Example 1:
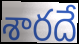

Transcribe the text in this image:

శారదే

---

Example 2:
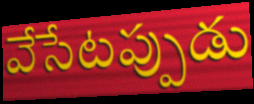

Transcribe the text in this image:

వేసేటప్పుడు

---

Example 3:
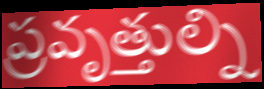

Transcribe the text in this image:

ప్రవృత్తుల్ని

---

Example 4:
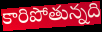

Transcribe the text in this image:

కారిపోతున్నది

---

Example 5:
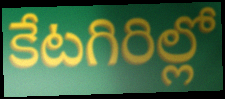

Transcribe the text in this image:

కేటగిరిల్లో